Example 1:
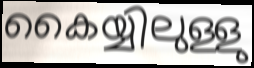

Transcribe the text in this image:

കൈയ്യിലുള്ളു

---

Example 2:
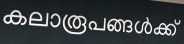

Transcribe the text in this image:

കലാരൂപങ്ങൾക്ക്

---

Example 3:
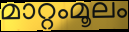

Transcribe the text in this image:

മാറ്റംമൂലം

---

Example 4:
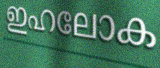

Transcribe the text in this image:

ഇഹലോക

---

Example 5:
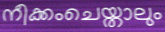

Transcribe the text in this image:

നീക്കംചെയ്താലും